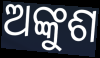
ଅଙ୍କୁଶ